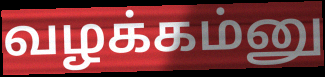
வழக்கம்னு